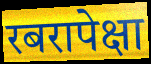
रबरापेक्षा